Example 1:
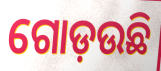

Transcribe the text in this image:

ଗୋଡ଼ଉଛି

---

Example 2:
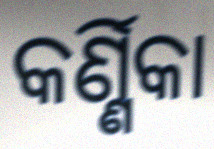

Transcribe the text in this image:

କର୍ଣ୍ଣିକା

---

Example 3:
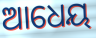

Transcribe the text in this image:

ଆଧେୟ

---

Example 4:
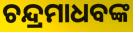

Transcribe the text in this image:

ଚନ୍ଦ୍ରମାଧବଙ୍କ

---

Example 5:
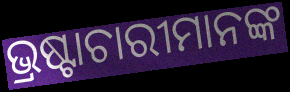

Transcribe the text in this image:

ଭ୍ରଷ୍ଟାଚାରୀମାନଙ୍କ